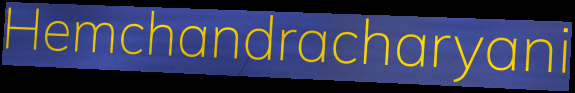
Hemchandracharyani